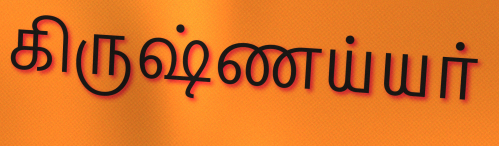
கிருஷ்ணய்யர்